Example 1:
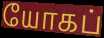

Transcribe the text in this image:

யோகப்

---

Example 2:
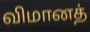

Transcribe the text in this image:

விமானத்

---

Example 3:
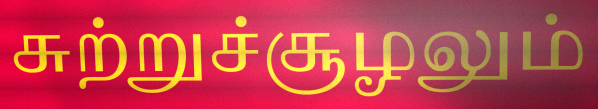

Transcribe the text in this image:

சுற்றுச்சூழலும்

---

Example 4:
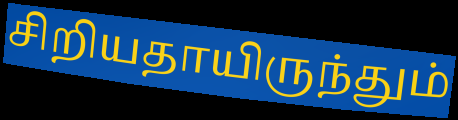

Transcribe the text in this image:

சிறியதாயிருந்தும்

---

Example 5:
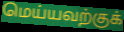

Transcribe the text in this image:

மெய்யவற்குக்